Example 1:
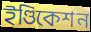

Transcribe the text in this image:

ইণ্ডিকেশন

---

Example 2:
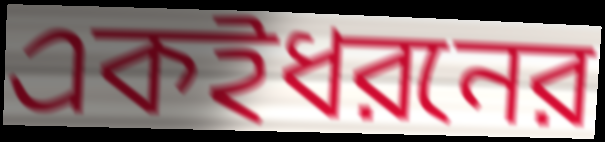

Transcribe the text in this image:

একইধরনের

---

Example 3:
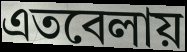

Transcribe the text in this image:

এতবেলায়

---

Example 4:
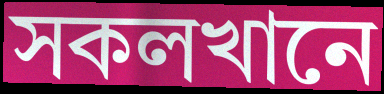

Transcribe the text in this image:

সকলখানে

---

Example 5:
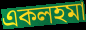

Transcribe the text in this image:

একলহমা